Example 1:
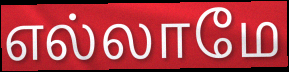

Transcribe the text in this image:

எல்லாமே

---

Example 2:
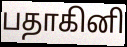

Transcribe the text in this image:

பதாகினி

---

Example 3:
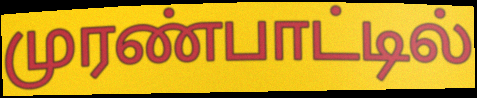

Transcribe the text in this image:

முரண்பாட்டில்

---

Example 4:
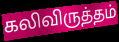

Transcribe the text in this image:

கலிவிருத்தம்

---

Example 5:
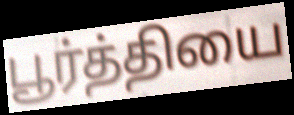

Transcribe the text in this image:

பூர்த்தியை